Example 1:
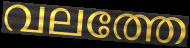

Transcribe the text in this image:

വലത്തേ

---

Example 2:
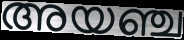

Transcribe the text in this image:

അയഞ്ച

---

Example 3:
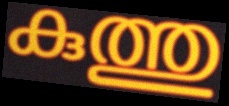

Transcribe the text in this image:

കുത്തു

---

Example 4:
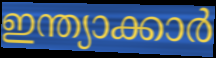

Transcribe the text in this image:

ഇന്ത്യാക്കാർ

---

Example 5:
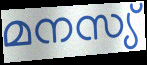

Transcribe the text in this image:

മനസ്യ്